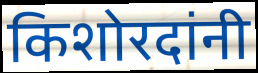
किशोरदांनी